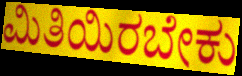
ಮಿತಿಯಿರಬೇಕು